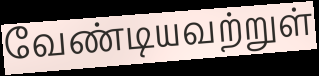
வேண்டியவற்றுள்